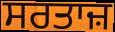
ਸਰਤਾਜ਼